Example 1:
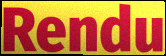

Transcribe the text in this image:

Rendu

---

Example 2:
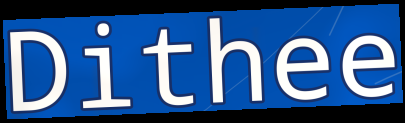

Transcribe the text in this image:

Dithee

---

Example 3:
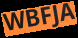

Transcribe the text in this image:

WBFJA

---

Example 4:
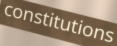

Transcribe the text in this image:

constitutions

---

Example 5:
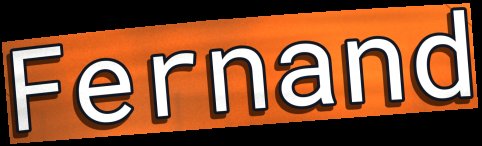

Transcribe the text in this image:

Fernand